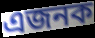
এজনক